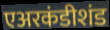
एअरकंडीशंड